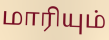
மாரியும்